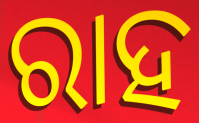
ରାହ